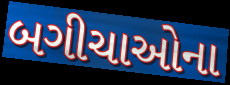
બગીચાઓના